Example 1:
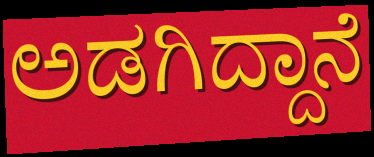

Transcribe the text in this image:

ಅಡಗಿದ್ದಾನೆ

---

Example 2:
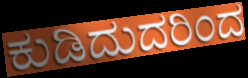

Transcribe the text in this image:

ಕುಡಿದುದರಿಂದ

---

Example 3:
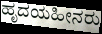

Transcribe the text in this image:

ಹೃದಯಹೀನರು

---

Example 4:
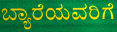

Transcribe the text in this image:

ಬ್ಯಾರೆಯವರಿಗೆ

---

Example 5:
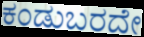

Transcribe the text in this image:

ಕಂಡುಬರದೇ